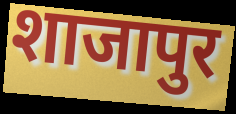
शाजापुर